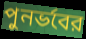
পুনর্ভবের